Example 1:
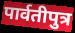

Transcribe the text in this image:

पार्वतीपुत्र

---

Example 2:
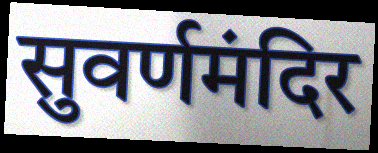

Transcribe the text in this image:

सुवर्णमंदिर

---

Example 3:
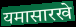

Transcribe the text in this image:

यमासारखे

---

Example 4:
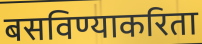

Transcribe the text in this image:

बसविण्याकरिता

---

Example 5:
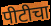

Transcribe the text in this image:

पीटीचा